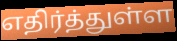
எதிர்த்துள்ள